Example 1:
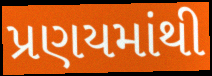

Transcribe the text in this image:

પ્રણયમાંથી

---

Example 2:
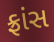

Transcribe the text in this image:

ફ્રાંસ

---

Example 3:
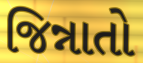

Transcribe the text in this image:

જિન્નાતો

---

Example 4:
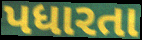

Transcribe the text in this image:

પધારતા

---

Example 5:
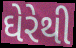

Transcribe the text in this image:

ઘેરેથી